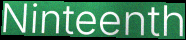
Ninteenth